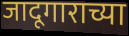
जादूगाराच्या